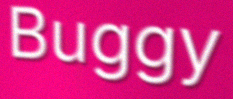
Buggy